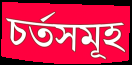
চৰ্তসমূহ